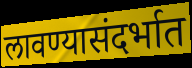
लावण्यासंदर्भात